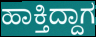
ಹಾಕ್ತಿದ್ದಾಗ